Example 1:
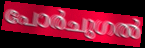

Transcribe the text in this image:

പോർചുഗൽ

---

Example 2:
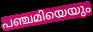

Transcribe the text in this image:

പഞ്ചമിയെയും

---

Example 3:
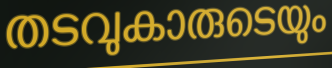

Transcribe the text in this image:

തടവുകാരുടെയും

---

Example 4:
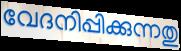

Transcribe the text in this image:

വേദനിപ്പിക്കുന്നതു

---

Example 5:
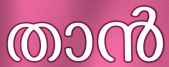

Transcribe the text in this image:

താൻ